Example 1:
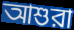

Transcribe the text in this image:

আশুরা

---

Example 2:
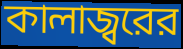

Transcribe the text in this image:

কালাজ্বরের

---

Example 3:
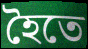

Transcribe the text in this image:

হৈতে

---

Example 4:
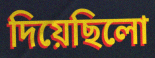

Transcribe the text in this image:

দিয়েছিলো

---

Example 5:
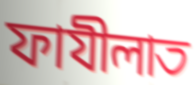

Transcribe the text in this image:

ফাযীলাত